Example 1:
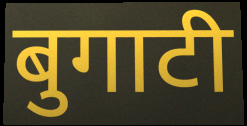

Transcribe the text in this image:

बुगाटी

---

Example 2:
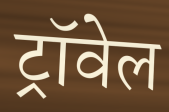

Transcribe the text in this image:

ट्रॉवेल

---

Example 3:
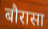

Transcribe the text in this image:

बौरासा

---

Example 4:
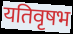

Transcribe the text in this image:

यतिवृषभ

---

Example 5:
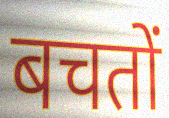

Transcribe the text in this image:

बचतों